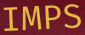
IMPS